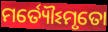
ମର୍ତ୍ୟୌଽମୃତୋ